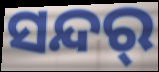
ସନ୍ଦର୍